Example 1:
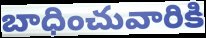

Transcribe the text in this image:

బాధించువారికి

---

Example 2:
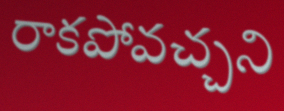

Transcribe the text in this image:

రాకపోవచ్చని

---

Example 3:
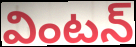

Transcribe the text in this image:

వింటన్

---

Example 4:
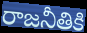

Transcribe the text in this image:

రాజనీతికి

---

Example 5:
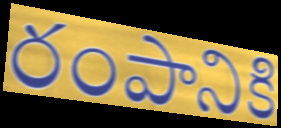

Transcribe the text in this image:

రంపానికి